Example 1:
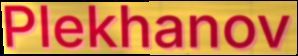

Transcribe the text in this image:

Plekhanov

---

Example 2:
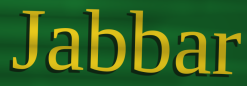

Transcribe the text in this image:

Jabbar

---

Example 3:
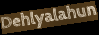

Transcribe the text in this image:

Dehlyalahun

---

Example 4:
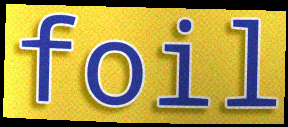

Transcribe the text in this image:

foil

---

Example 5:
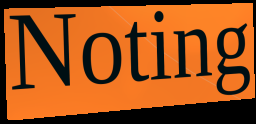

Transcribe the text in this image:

Noting